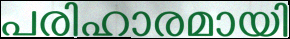
പരിഹാരമായി